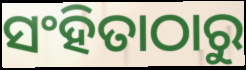
ସଂହିତାଠାରୁ